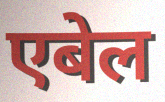
एबेल